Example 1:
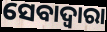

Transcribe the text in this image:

ସେବାଦ୍ବାରା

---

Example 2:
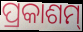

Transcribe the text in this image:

ପ୍ରକାଶମ୍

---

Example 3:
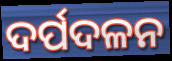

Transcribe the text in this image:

ଦର୍ପଦଳନ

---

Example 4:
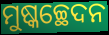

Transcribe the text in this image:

ମୁଷ୍କଚ୍ଛେଦନ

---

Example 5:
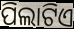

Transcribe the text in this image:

ପିଲାଟିଏ